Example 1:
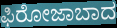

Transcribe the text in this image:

ಫಿರೋಜಾಬಾದ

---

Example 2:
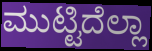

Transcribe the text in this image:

ಮುಟ್ಟಿದೆಲ್ಲಾ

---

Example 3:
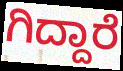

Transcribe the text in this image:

ಗಿದ್ದಾರೆ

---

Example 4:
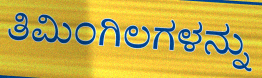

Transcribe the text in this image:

ತಿಮಿಂಗಿಲಗಳನ್ನು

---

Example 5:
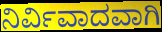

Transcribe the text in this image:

ನಿರ್ವಿವಾದವಾಗಿ